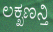
ಲಕ್ಖಣನ್ತಿ